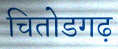
चितोडगढ़